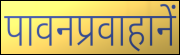
पावनप्रवाहानें